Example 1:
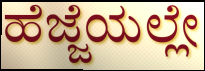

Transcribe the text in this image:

ಹೆಜ್ಜೆಯಲ್ಲೇ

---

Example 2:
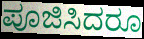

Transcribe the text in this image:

ಪೂಜಿಸಿದರೂ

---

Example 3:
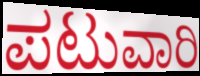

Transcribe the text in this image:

ಪಟುವಾರಿ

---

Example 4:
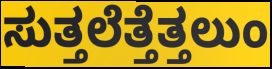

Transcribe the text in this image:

ಸುತ್ತಲೆತ್ತೆತ್ತಲುಂ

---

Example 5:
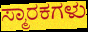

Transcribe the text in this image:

ಸ್ಮಾರಕಗಳು